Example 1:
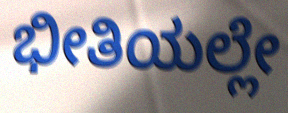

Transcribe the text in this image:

ಭೀತಿಯಲ್ಲೇ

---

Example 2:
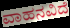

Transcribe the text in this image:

ವಾಹನವಿದೆ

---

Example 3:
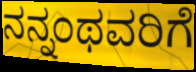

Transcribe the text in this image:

ನನ್ನಂಥವರಿಗೆ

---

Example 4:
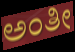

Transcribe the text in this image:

ಅಂತೀ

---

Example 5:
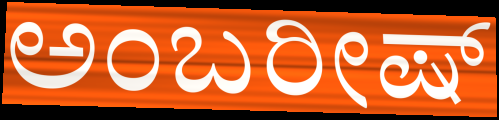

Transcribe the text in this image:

ಅಂಬರೀಷ್